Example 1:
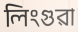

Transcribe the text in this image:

লিংগুৱা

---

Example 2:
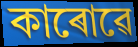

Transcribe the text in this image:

কাৰোৱে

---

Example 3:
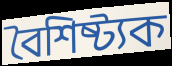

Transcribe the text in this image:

বৈশিষ্ট্যক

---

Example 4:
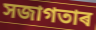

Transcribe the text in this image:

সজাগতাৰ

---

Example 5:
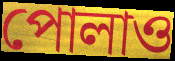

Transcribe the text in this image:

পোলাও